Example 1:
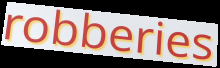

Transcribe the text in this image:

robberies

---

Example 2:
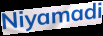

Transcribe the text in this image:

Niyamadi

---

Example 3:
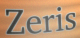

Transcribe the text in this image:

Zeris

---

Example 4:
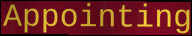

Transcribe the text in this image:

Appointing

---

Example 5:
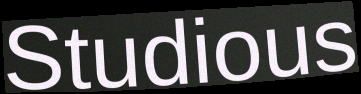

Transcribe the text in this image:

Studious